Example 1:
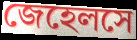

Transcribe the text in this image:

জেহেলসে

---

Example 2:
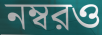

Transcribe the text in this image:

নম্বরও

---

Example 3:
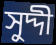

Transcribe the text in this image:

সুদ্দী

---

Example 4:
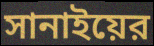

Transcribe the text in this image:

সানাইয়ের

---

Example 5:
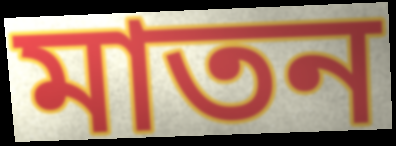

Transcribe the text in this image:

মাতন